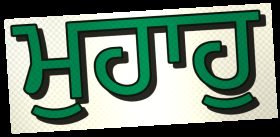
ਮੁਹਾਹੁ